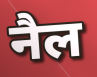
नैल